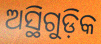
ଅସ୍ଥିଗୁଡ଼ିକ